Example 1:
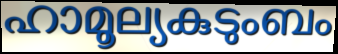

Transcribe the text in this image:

ഹാമൂല്യകുടുംബം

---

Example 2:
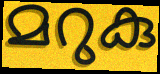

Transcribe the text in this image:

മറുകു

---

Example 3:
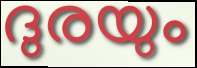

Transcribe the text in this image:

ദുരയും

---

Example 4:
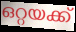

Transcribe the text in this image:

ഒറ്റയക്ക്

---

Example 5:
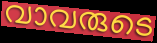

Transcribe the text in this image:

വാവരുടെ